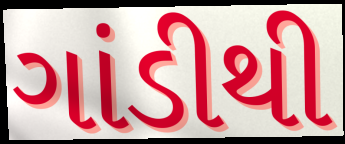
ગાંડીથી